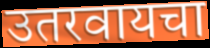
उतरवायचा